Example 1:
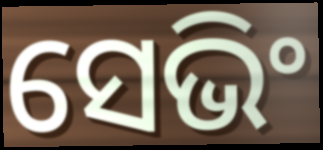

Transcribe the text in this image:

ସେଭିଂ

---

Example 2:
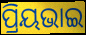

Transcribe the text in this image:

ପ୍ରିୟଭାଇ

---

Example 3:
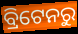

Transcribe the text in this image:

ବ୍ରିଟେନରୁ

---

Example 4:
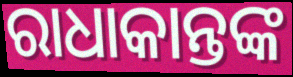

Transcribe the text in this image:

ରାଧାକାନ୍ତଙ୍କ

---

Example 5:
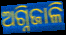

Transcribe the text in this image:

ଅଗ୍ନିଜାଳି